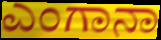
ಎಂಗಾನಾ